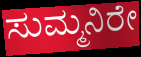
ಸುಮ್ಮನಿರೇ